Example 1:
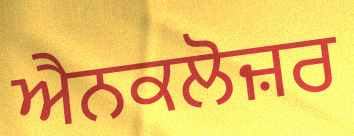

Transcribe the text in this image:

ਐਨਕਲੋਜ਼ਰ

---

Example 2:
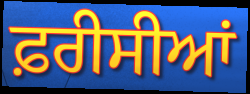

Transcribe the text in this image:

ਫ਼ਰੀਸੀਆਂ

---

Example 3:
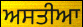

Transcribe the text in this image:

ਅਸਤੀਆ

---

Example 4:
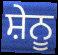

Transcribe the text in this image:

ਸ਼ੇਨੂ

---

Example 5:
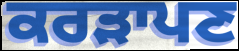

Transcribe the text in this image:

ਕਰੜਾਪਣ